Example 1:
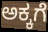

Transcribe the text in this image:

ಅಕ್ಕಗೆ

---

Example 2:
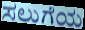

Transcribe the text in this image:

ಸಲುಗೆಯ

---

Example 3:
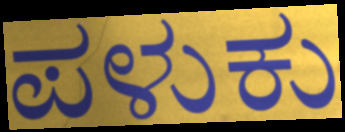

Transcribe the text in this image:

ಪಳುಕು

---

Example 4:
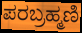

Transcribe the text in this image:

ಪರಬ್ರಹ್ಮಣಿ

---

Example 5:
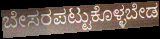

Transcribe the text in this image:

ಬೇಸರಪಟ್ಟುಕೊಳ್ಳಬೇಡ